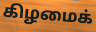
கிழமைக்